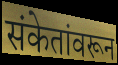
संकेतांवरून